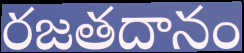
రజతదానం